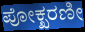
ಪೋಕ್ಖರಣೀ